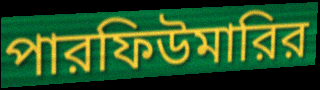
পারফিউমারির